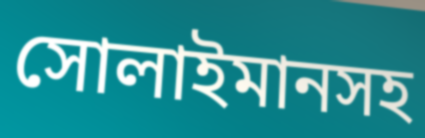
সোলাইমানসহ